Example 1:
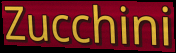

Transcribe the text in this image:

Zucchini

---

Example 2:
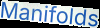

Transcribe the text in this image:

Manifolds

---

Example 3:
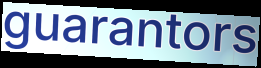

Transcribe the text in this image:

guarantors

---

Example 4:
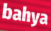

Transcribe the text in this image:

bahya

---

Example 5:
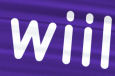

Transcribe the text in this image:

wiil